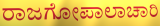
ರಾಜಗೋಪಾಲಾಚಾರಿ